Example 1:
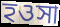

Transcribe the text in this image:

হওসা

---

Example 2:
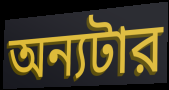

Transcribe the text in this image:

অন্যটার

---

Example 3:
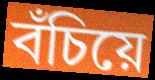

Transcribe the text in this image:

বঁচিয়ে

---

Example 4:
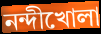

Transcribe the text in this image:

নন্দীখোলা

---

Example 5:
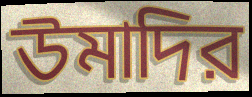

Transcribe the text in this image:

উমাদির